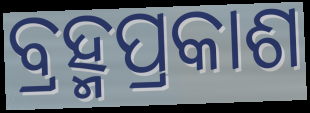
ବ୍ରହ୍ମପ୍ରକାଶ